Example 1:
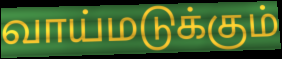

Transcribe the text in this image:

வாய்மடுக்கும்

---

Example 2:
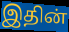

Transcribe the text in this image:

இதின்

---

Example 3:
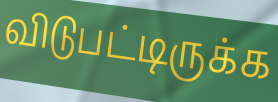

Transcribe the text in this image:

விடுபட்டிருக்க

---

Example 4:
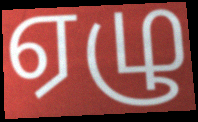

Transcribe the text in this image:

ஏழு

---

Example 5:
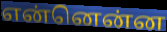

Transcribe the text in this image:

என்னென்ன